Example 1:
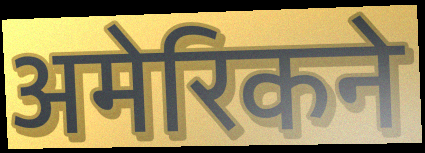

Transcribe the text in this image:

अमेरिकने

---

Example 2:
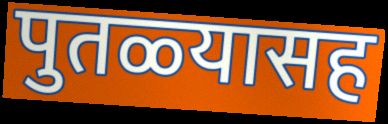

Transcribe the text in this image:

पुतळ्यासह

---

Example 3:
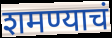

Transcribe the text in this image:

शमण्याचं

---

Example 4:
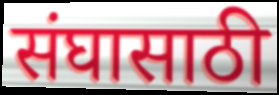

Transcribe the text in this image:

संघासाठी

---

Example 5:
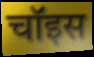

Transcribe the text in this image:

चॉइस